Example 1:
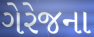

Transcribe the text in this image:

ગેરેજના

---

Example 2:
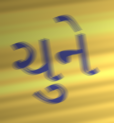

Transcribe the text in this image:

ચુને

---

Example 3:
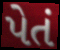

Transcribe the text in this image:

પેતં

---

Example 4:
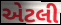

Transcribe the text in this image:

એટલી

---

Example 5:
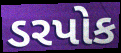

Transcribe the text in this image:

ડરપોક